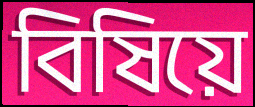
বিষিয়ে